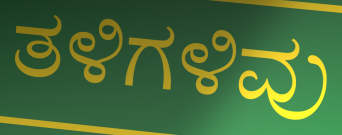
ತಳಿಗಳಿವು